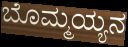
ಬೊಮ್ಮಯ್ಯನ